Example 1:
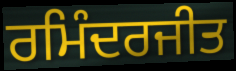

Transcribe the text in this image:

ਰਮਿੰਦਰਜੀਤ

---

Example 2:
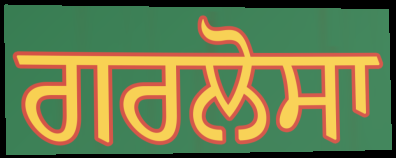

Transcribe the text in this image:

ਗਰਲੋਸਾ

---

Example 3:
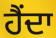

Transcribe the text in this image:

ਹੈਂਦਾ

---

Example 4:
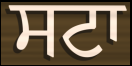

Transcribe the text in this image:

ਸਟਾ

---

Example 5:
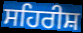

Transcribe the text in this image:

ਸਹਿਰੀਸ਼